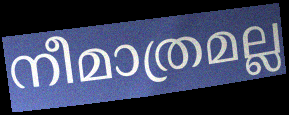
നീമാത്രമല്ല